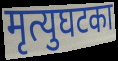
मृत्युघटका